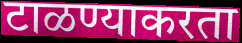
टाळण्याकरता